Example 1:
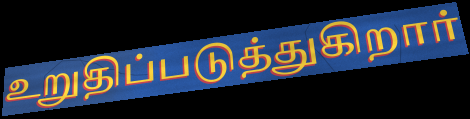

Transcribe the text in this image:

உறுதிப்படுத்துகிறார்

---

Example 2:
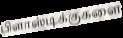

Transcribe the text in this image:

பிளாஸ்டிக்குகளை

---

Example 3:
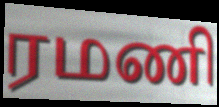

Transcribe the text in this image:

ரமணி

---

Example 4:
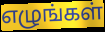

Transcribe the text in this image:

எழுங்கள்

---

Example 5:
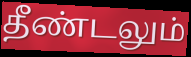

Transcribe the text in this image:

தீண்டலும்